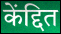
केंद्दित